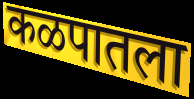
कळपातला